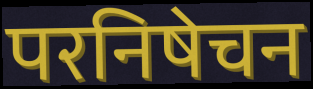
परनिषेचन